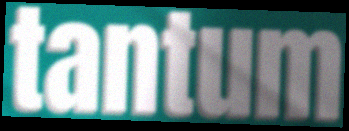
tantum